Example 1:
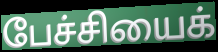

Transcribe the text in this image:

பேச்சியைக்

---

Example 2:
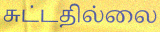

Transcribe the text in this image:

சுட்டதில்லை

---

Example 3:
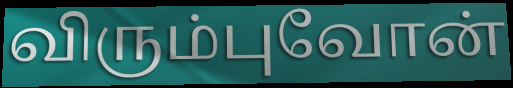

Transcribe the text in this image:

விரும்புவோன்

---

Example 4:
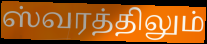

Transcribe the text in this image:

ஸ்வரத்திலும்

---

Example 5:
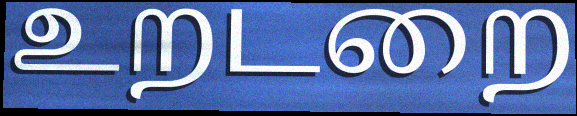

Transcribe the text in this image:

உறடறை